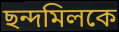
ছন্দমিলকে